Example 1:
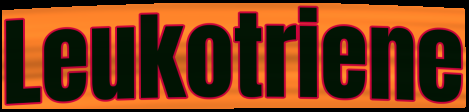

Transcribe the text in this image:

Leukotriene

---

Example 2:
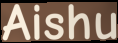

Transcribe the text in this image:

Aishu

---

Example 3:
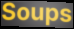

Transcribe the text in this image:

Soups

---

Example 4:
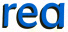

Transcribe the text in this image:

rea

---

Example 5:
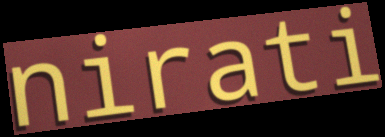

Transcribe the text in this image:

nirati